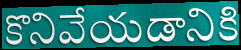
కొనివేయడానికి